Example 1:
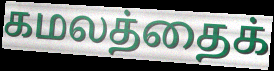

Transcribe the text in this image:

கமலத்தைக்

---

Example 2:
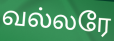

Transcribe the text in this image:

வல்லரே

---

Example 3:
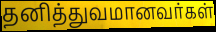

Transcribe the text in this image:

தனித்துவமானவர்கள்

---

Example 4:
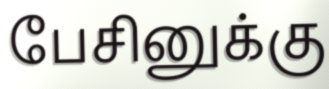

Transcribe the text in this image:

பேசினுக்கு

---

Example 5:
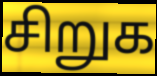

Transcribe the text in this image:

சிறுக